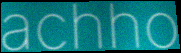
achho